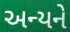
અન્યને